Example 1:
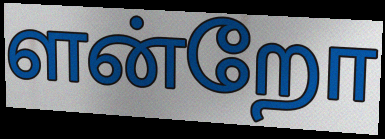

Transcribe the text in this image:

ளன்றோ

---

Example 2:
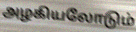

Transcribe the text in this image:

அழகியலோடும்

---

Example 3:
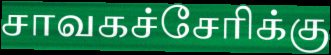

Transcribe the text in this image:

சாவகச்சேரிக்கு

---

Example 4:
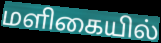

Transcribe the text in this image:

மளிகையில்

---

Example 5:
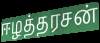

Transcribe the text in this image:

ஈழத்தரசன்